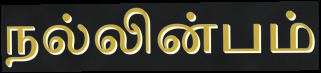
நல்லின்பம்